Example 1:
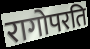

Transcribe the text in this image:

रागोपरति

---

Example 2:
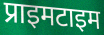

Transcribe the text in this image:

प्राइमटाइम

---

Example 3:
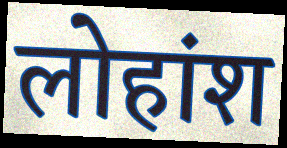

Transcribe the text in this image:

लोहांश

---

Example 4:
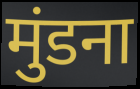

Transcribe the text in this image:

मुंडना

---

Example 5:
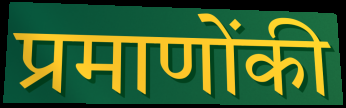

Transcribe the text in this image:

प्रमाणोंकी